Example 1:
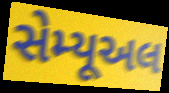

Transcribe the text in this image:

સેમ્યૂઅલ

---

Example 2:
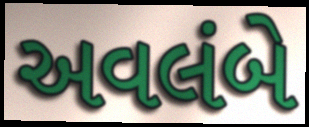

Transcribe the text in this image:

અવલંબે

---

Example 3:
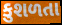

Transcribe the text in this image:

કુશળતા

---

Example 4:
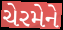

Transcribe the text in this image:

ચેરમેને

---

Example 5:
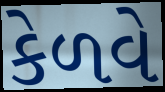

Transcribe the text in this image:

કેળવે